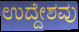
ಉದ್ದೇಶವು